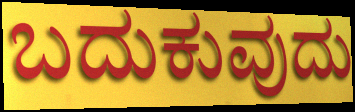
ಬದುಕುವುದು